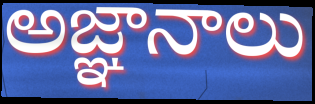
అజ్ఞానాలు